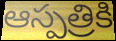
ఆస్పత్రికి